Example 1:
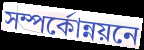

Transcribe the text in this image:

সম্পর্কোন্নয়নে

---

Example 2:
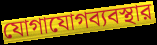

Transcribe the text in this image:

যোগাযোগব্যবস্থার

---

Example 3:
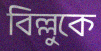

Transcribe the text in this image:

বিল্লুকে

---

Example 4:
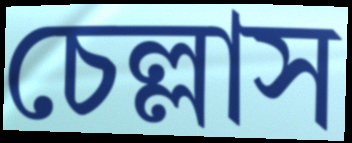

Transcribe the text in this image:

চেল্লাস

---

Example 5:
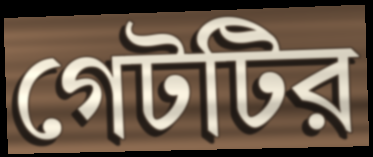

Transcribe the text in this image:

গেটটির